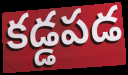
కడ్డపడ